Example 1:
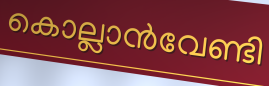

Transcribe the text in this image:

കൊല്ലാൻവേണ്ടി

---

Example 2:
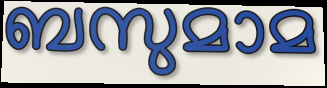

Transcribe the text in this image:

ബസുമാമ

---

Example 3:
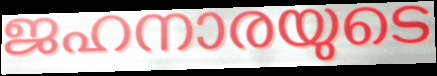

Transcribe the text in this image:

ജഹനാരയുടെ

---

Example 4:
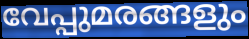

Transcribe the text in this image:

വേപ്പുമരങ്ങളും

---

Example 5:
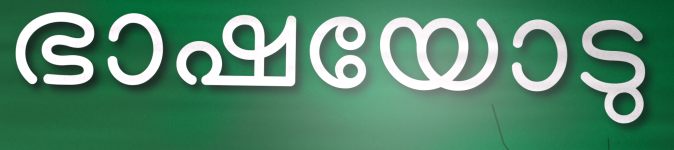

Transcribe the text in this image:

ഭാഷയോടു